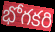
భోగకరి